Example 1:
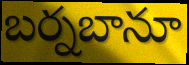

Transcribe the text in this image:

బర్నబానూ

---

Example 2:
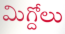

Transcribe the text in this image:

మిగ్దోలు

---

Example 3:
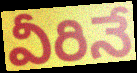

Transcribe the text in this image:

వీరినే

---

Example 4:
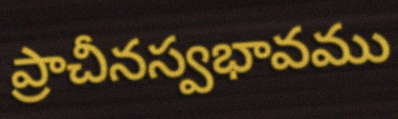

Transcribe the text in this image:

ప్రాచీనస్వభావము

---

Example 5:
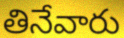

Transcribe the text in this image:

తినేవారు